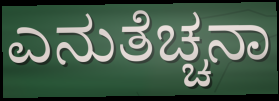
ಎನುತೆಚ್ಚನಾ